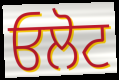
ਓਲੋਟ